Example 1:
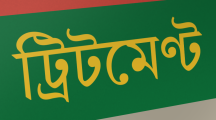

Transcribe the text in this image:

ট্ৰিটমেণ্ট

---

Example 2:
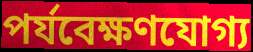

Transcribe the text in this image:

পৰ্যবেক্ষণযোগ্য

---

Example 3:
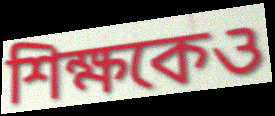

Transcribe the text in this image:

শিক্ষকেও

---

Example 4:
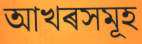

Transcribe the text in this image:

আখৰসমূহ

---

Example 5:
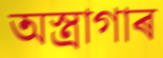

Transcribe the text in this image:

অস্ত্ৰাগাৰ